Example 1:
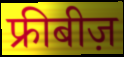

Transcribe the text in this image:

फ्रीबीज़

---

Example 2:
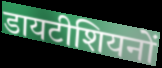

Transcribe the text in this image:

डायटीशियनों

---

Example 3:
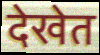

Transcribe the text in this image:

देखेत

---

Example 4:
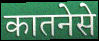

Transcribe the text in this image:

कातनेसे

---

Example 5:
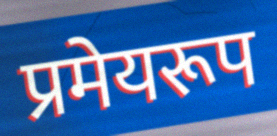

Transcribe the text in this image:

प्रमेयरूप